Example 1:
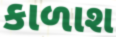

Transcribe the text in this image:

કાળાશ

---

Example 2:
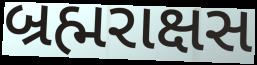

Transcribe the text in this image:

બ્રહ્મરાક્ષસ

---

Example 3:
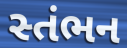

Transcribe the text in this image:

સ્તંભન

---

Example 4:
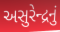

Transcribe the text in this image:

અસુરેન્દ્રનું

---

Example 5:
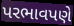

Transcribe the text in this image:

પરભાવપણે